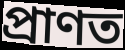
প্ৰাণত